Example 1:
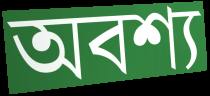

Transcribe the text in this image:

অবশ্য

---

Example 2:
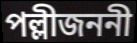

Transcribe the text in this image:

পল্লীজননী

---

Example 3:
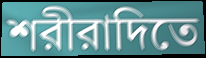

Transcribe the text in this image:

শরীরাদিতে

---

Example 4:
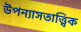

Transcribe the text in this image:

উপন্যাসতাত্ত্বিক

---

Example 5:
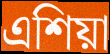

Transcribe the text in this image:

এশিয়া